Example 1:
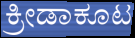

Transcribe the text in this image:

ಕ್ರೀಡಾಕೂಟ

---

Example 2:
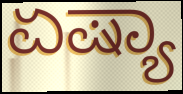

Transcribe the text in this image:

ಏಷ್ಯಾ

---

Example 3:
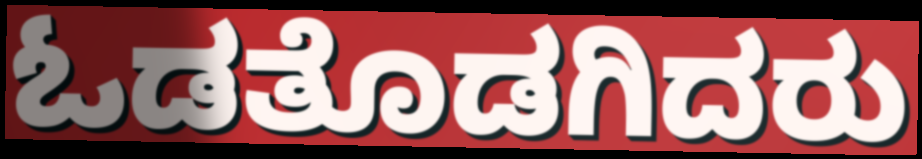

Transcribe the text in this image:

ಓಡತೊಡಗಿದರು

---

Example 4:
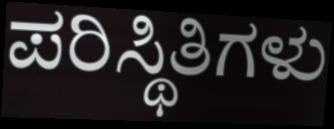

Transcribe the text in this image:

ಪರಿಸ್ಥಿತಿಗಳು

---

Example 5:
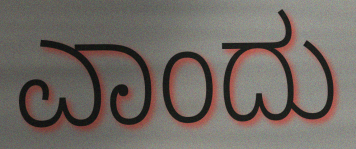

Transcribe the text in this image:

ಎಾಂದು